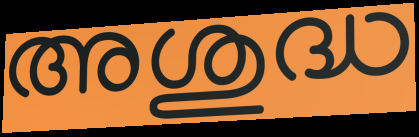
അശുദ്ധ